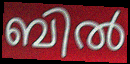
ബിൽ